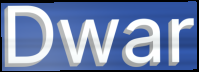
Dwar